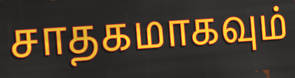
சாதகமாகவும்